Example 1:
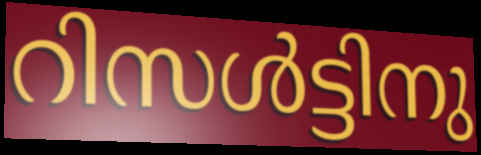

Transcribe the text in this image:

റിസൾട്ടിനു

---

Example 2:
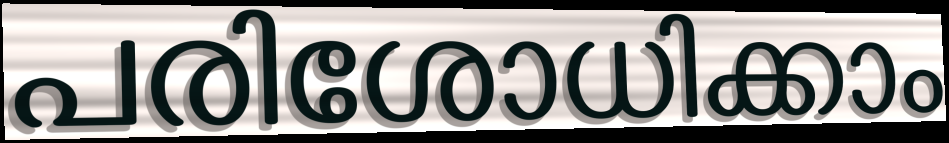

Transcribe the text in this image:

പരിശോധിക്കാം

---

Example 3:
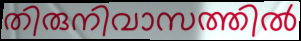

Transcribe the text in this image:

തിരുനിവാസത്തിൽ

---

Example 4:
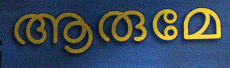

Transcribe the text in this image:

ആരുമേ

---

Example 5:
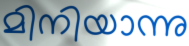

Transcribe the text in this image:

മിനിയാന്നു